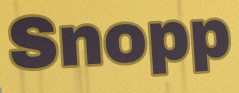
Snopp